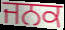
ਜਨਕ